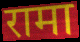
रामा